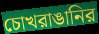
চোখরাঙানির